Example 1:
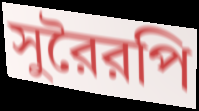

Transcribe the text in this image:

সুরৈরপি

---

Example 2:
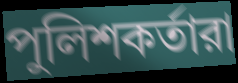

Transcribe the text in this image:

পুলিশকর্তারা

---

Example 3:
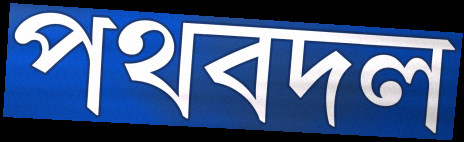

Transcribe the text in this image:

পথবদল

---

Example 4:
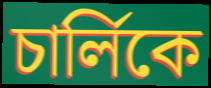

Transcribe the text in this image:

চার্লিকে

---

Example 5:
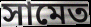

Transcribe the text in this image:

সামেত